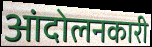
आंदोलनकारी